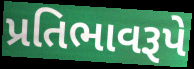
પ્રતિભાવરૂપે